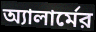
অ্যালার্মের